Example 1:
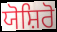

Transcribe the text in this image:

ਯੋਸ਼ਿਰੋ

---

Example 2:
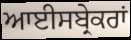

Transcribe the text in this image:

ਆਈਸਬ੍ਰੇਕਰਾਂ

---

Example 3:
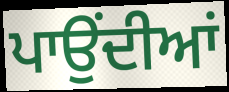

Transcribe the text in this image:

ਪਾਉਂਦੀਆਂ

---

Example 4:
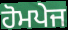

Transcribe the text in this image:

ਹੋਮਪੇਜ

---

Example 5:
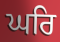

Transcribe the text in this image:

ਘਰਿ